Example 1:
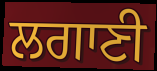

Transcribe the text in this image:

ਲਗਾਣੀ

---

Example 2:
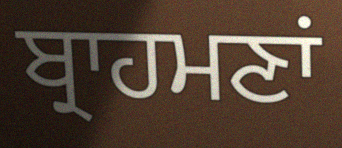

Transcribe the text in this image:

ਬ੍ਰਾਹਮਣਾਂ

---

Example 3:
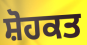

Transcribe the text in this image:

ਸ਼ੋਹਕਤ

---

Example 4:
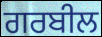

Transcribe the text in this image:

ਗਰਬੀਲ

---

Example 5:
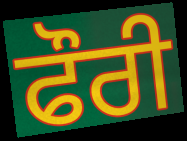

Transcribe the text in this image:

ਫੌਰੀ